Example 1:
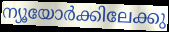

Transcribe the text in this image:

ന്യൂയോർക്കിലേക്കു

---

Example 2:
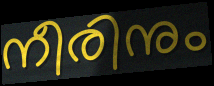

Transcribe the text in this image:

നീരിനും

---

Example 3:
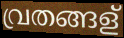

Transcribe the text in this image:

വ്രതങ്ങള്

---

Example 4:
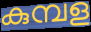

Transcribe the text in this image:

കുമ്പള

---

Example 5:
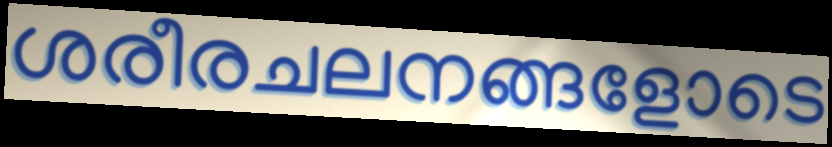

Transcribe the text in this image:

ശരീരചലനങ്ങളോടെ